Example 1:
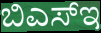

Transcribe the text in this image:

ಬಿಎಸ್ಇ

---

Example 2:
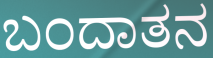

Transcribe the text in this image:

ಬಂದಾತನ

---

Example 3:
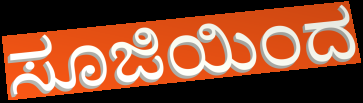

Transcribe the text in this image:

ಸೂಜಿಯಿಂದ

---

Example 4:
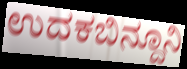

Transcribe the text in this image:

ಉದಕಬಿನ್ದೂನಿ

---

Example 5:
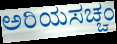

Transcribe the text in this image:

ಅರಿಯಸಚ್ಚಂ